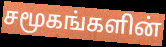
சமூகங்களின்